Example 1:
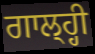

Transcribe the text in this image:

ਗਾਲ੍ਹ੍ਹੀ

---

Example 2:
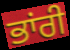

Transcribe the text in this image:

ਭਾਂਰੀ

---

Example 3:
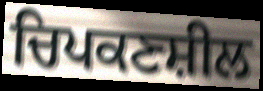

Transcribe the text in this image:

ਚਿਪਕਣਸ਼ੀਲ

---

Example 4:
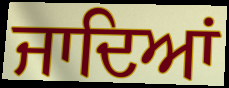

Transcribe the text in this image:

ਜਾਦਿਆਂ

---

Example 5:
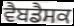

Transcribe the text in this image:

ਵੈਬਡੈਸਕ